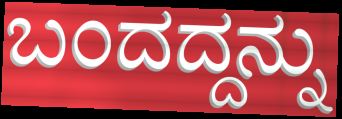
ಬಂದದ್ದನ್ನು